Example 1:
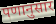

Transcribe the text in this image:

पणानुसार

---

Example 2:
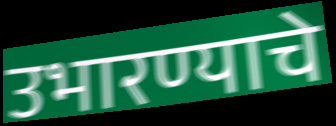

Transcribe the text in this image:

उभारण्याचे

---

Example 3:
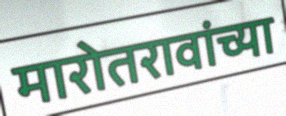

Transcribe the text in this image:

मारोतरावांच्या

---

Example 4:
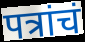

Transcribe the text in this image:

पत्रांचं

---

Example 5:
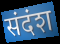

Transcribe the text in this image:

संदंश